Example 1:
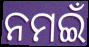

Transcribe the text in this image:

ନମଇଁ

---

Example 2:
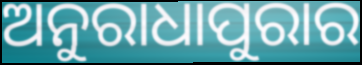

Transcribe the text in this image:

ଅନୁରାଧାପୁରାର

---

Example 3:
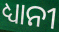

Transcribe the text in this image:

ଧ୍ୟାନୀ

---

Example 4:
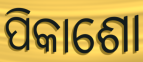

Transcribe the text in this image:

ପିକାଶୋ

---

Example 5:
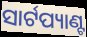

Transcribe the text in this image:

ସାର୍ଟପ୍ୟାଣ୍ଟ